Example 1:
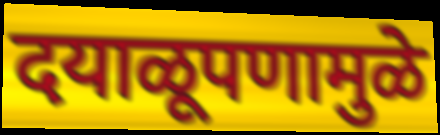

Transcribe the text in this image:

दयाळूपणामुळे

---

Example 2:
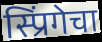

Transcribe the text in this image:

स्प्रिंगेचा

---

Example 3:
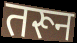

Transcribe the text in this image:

तरून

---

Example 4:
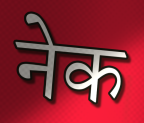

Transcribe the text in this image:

नेक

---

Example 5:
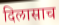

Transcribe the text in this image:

दिलासाच